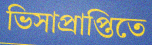
ভিসাপ্রাপ্তিতে